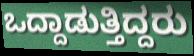
ಒದ್ದಾಡುತ್ತಿದ್ದರು